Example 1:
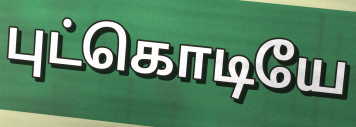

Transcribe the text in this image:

புட்கொடியே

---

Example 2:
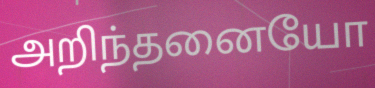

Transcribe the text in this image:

அறிந்தனையோ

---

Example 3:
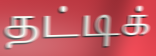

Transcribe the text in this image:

தட்டிக்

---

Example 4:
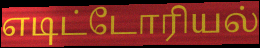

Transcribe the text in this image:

எடிட்டோரியல்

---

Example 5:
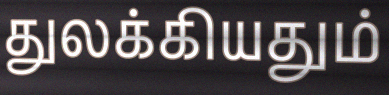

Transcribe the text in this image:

துலக்கியதும்